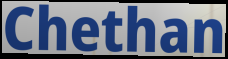
Chethan